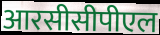
आरसीसीपीएल